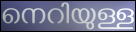
നെറിയുള്ള